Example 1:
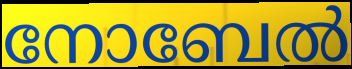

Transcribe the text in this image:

നോബേൽ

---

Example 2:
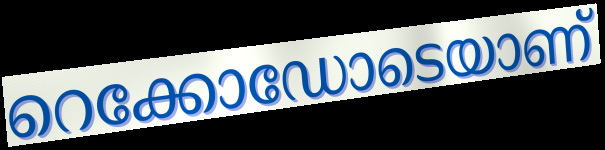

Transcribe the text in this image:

റെക്കോഡോടെയാണ്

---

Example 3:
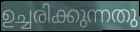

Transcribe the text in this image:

ഉച്ചരിക്കുന്നതു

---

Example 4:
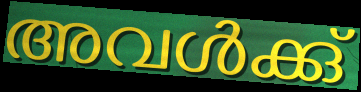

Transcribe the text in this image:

അവൾക്കു്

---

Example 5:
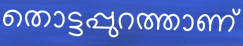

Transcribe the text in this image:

തൊട്ടപ്പുറത്താണ്